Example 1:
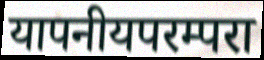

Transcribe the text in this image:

यापनीयपरम्परा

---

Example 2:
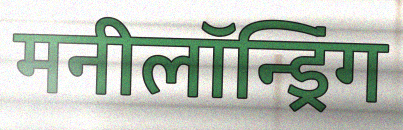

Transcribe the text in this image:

मनीलॉन्ड्रिंग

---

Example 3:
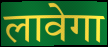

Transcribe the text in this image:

लावेगा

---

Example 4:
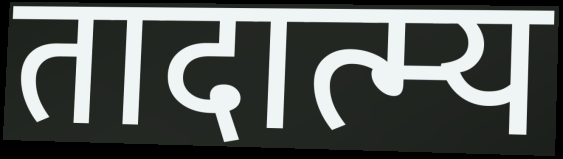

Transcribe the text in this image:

तादात्म्य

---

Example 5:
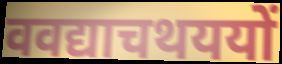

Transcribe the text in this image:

ववद्याचथययों